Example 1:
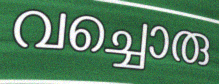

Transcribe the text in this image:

വച്ചൊരു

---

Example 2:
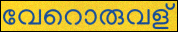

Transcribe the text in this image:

വേറൊരുവള്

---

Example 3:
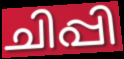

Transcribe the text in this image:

ചിപ്പി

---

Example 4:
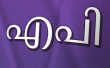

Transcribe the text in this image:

എപി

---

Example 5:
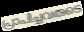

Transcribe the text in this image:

പ്രാപിച്ചവരുടെ